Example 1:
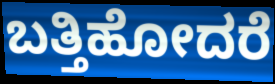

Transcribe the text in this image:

ಬತ್ತಿಹೋದರೆ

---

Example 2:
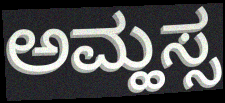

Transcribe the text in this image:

ಅಮ್ಹಸ್ಸ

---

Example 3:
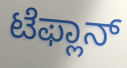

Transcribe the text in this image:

ಟೆಫ್ಲಾನ್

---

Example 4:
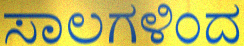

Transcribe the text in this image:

ಸಾಲಗಳಿಂದ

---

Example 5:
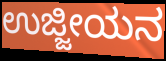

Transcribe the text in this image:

ಉಜ್ಜೀಯನ